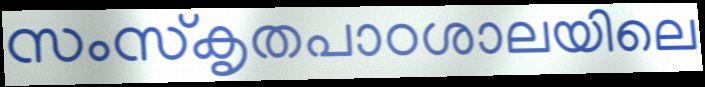
സംസ്കൃതപാഠശാലയിലെ